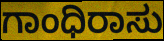
ಗಾಂಧಿರಾಸು